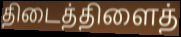
திடைத்திளைத்